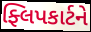
ફ્લિપકાર્ટને